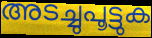
അടച്ചുപൂട്ടുക